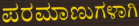
ಪರಮಾಣುಗಳಾಗಿ